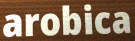
arobica